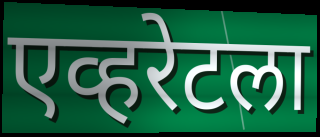
एव्हरेटला